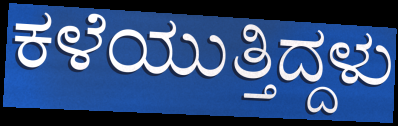
ಕಳೆಯುತ್ತಿದ್ದಳು